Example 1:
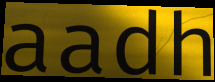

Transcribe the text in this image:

aadh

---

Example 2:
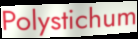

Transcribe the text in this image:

Polystichum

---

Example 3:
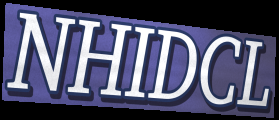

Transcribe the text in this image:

NHIDCL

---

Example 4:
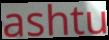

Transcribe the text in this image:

ashtu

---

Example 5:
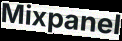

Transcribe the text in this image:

Mixpanel